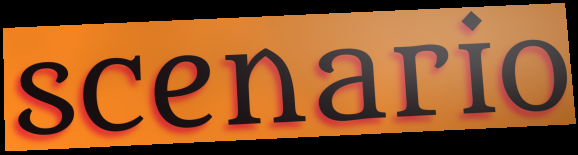
scenario